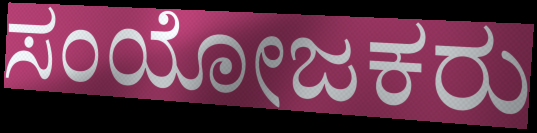
ಸಂಯೋಜಕರು